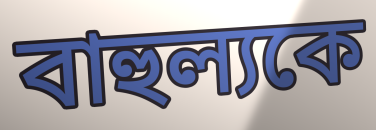
বাহুল্যকে